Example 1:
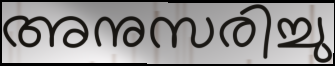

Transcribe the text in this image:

അനുസരിച്ചു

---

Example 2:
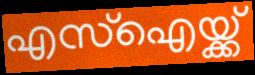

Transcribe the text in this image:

എസ്ഐയ്ക്ക്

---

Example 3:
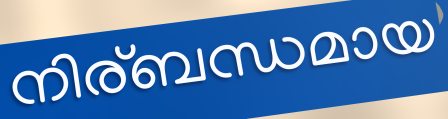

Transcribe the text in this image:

നിര്ബന്ധമായ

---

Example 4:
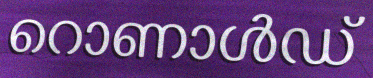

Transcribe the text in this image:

റൊണാൾഡ്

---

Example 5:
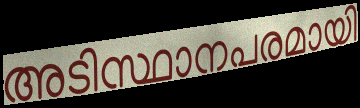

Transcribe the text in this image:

അടിസ്ഥാനപരമായി